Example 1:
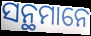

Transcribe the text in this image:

ସନ୍ଥମାନେ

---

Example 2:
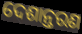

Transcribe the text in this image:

ଦେଶାନ୍ତରଣ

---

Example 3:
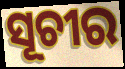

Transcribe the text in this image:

ସୂଚୀର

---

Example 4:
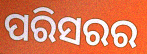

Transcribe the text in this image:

ପରିସରର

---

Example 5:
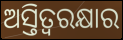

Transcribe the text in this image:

ଅସ୍ତିତ୍ୱରକ୍ଷାର